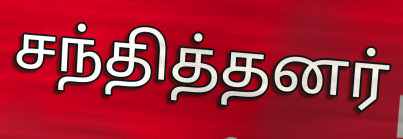
சந்தித்தனர்